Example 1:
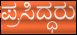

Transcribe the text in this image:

ಪ್ರಸಿದ್ಧರು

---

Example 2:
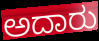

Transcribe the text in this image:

ಅದಾರು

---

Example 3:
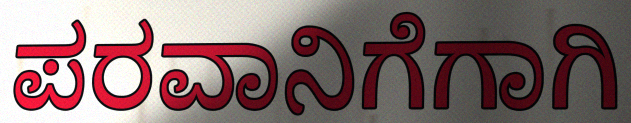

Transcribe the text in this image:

ಪರವಾನಿಗೆಗಾಗಿ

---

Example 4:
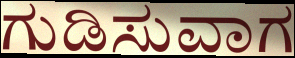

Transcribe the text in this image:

ಗುಡಿಸುವಾಗ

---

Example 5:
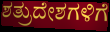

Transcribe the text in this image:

ಶತ್ರುದೇಶಗಳಿಗೆ